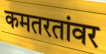
कमतरतांवर